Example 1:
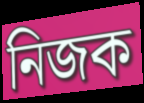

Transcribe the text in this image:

নিজক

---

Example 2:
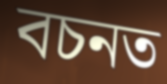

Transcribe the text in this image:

বচনত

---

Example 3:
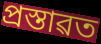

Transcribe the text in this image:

প্ৰস্তাৱত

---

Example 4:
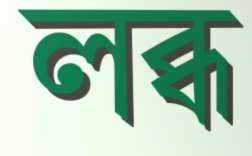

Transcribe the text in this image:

লব্ধ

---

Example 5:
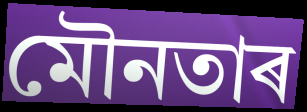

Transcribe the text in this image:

মৌনতাৰ